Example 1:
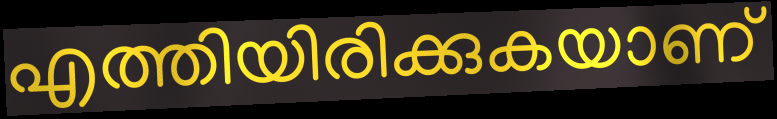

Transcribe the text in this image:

എത്തിയിരിക്കുകയാണ്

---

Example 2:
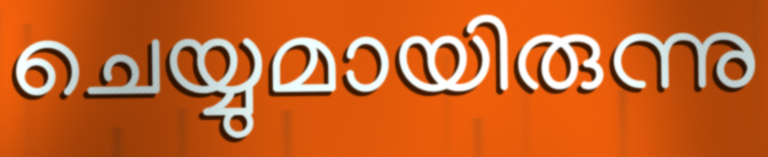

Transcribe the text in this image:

ചെയ്യുമായിരുന്നു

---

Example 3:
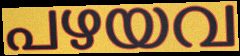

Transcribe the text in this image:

പഴയവ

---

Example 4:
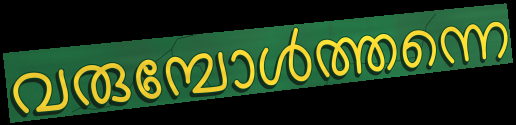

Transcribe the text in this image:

വരുമ്പോൾത്തന്നെ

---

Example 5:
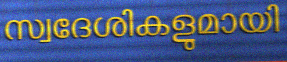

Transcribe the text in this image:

സ്വദേശികളുമായി